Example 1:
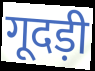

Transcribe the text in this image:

गूदड़ी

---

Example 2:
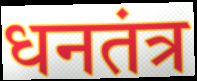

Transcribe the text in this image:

धनतंत्र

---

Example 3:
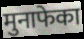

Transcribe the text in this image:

मुनाफेका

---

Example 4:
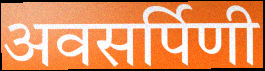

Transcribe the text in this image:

अवसर्पिणी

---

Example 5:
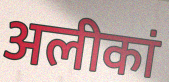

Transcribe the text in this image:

अलीकां